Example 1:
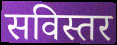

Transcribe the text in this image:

सविस्तर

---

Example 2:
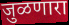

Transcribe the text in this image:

जुळणारा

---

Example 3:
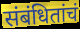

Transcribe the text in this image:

संबंधितांचं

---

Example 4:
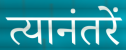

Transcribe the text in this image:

त्यानंतरें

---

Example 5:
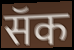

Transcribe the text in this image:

सॅक